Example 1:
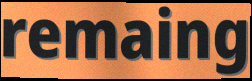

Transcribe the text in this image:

remaing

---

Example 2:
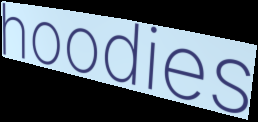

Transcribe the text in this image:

hoodies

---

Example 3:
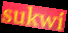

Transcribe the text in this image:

sukwi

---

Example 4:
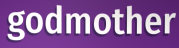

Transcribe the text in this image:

godmother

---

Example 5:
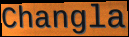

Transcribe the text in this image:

Changla